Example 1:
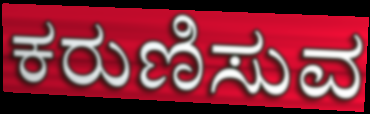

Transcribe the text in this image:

ಕರುಣಿಸುವ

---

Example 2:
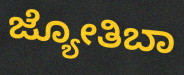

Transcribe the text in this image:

ಜ್ಯೋತಿಬಾ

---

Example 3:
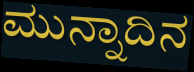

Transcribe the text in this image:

ಮುನ್ನಾದಿನ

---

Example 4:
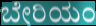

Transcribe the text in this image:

ಬೇರಿಯಂ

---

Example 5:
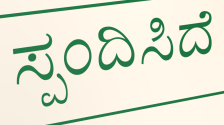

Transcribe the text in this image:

ಸ್ಪಂದಿಸಿದೆ